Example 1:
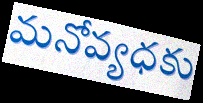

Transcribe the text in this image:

మనోవ్యధకు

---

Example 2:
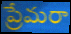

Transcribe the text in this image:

ప్రేమరా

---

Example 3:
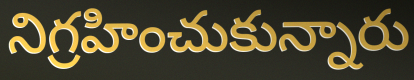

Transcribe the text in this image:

నిగ్రహించుకున్నారు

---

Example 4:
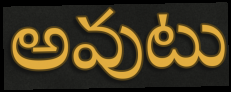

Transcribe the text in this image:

అవుటు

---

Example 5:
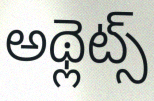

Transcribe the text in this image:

అథ్లెట్స్